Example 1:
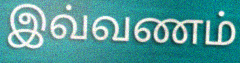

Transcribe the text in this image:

இவ்வணம்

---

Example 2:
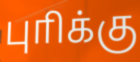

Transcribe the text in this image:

புரிக்கு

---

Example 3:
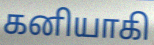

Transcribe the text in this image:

கனியாகி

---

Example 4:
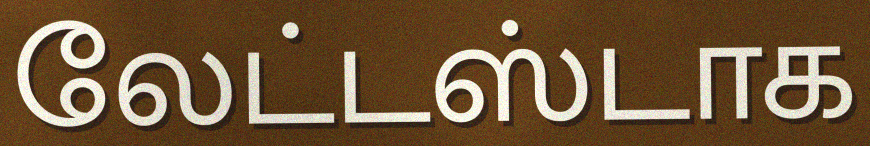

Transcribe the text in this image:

லேட்டஸ்டாக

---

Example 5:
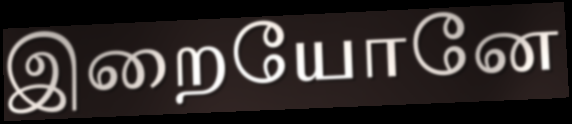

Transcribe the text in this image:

இறையோனே